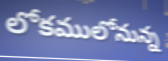
లోకములోనున్న